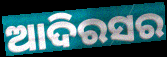
ଆଦିରସର